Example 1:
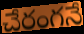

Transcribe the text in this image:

చేరంగనే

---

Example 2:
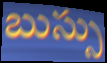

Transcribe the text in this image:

బుస్సు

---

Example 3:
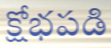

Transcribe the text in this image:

క్షోభపడి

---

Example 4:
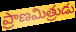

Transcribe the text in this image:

ప్రాణమిత్రుడు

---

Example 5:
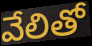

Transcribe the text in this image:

వేలితో